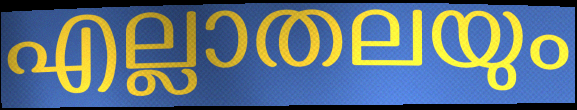
എല്ലാതലയും